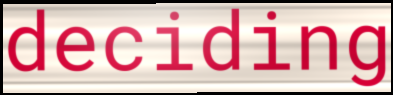
deciding